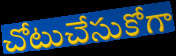
చోటుచేసుకోగా